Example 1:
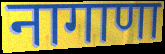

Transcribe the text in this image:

नागाणा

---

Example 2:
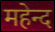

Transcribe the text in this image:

महेन्द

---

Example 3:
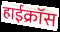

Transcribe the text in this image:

हाईक्रॉस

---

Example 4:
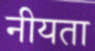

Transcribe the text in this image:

नीयता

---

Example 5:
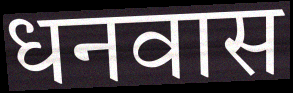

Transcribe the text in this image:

धनवास